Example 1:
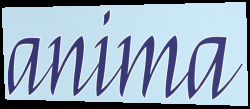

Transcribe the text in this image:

anima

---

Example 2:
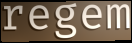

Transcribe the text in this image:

regem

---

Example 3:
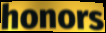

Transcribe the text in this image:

honors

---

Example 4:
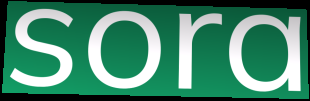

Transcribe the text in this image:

sora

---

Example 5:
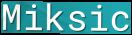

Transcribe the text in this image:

Miksic